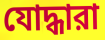
যোদ্ধারা